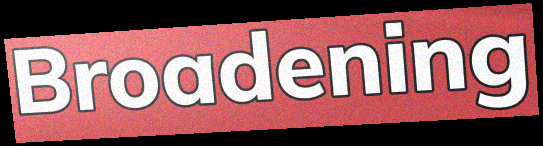
Broadening